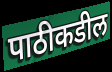
पाठीकडील